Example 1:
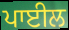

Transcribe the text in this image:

ਪਾਈਲ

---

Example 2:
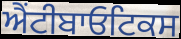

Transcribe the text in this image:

ਐਂਟੀਬਾਓਟਿਕਸ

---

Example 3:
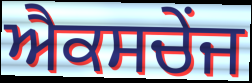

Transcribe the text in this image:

ਐਕਸਚੇਂਜ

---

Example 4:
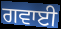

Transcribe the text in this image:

ਗਵਾਈ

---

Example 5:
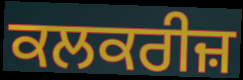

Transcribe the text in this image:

ਕਲਕਰੀਜ਼